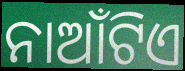
ନାଆଁଟିଏ